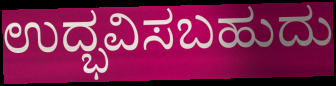
ಉದ್ಭವಿಸಬಹುದು